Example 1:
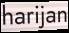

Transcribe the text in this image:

harijan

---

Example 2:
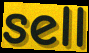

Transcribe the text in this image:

sell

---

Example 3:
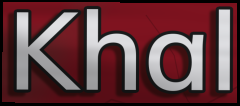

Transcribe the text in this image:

Khal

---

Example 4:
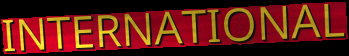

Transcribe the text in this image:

INTERNATIONAL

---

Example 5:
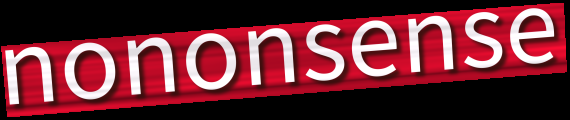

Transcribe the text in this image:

nononsense